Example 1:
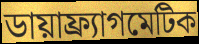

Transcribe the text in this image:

ডায়াফ্র্যাগমেটিক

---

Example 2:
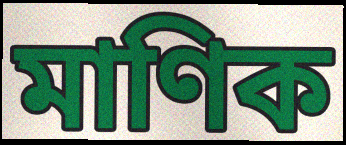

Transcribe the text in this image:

মাণিক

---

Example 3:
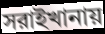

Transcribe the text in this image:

সরাইখানায়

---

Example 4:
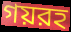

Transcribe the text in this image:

গয়রহ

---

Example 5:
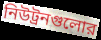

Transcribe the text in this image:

নিউট্রনগুলোর